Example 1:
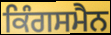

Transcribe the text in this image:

ਕਿੰਗਸਮੈਨ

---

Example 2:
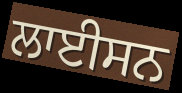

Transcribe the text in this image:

ਲਾਈਸਨ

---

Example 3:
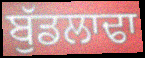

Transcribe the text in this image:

ਬੁੱਡਲਾਢਾ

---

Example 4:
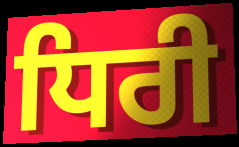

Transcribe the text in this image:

ਧਿਰੀ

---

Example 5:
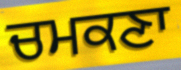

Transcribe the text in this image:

ਚਮਕਣਾ